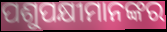
ପଶୁପକ୍ଷୀମାନଙ୍କର